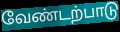
வேண்டற்பாடு